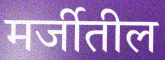
मर्जीतील